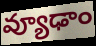
వ్యూఢాం